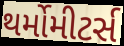
થર્મોમીટર્સ